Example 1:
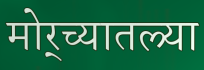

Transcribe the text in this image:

मोर्च्यातल्या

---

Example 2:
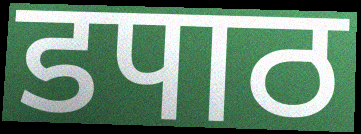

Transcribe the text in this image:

डपाठ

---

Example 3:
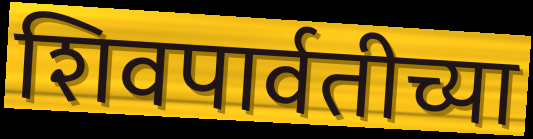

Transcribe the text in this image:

शिवपार्वतीच्या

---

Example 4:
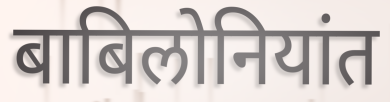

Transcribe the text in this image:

बाबिलोनियांत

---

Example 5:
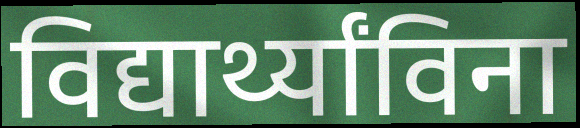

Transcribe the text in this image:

विद्यार्थ्यांविना